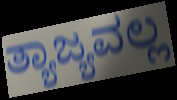
ತ್ಯಾಜ್ಯವಲ್ಲ